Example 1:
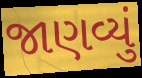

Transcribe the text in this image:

જાણવ્યું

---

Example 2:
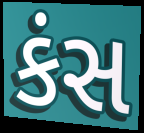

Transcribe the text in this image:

કંસ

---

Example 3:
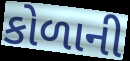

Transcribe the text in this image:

કોળાની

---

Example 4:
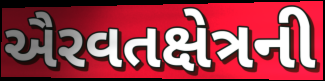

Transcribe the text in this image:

ઐરવતક્ષેત્રની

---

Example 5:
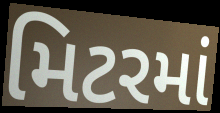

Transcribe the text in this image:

મિટરમાં